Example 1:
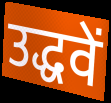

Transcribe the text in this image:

उद्धवें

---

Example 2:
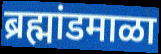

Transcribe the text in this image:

ब्रह्मांडमाळा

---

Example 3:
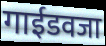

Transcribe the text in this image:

गाईडवजा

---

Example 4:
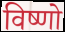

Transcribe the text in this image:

विष्णो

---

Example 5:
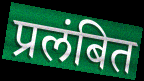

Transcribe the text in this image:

प्रलंबित